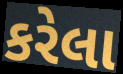
કરેલા